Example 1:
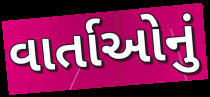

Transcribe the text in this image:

વાર્તાઓનું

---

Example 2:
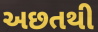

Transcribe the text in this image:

અછતથી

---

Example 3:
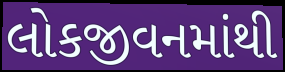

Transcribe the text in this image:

લોકજીવનમાંથી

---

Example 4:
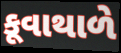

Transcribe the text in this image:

કૂવાથાળે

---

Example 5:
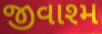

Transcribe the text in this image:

જીવાશ્મ